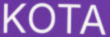
KOTA